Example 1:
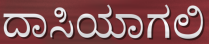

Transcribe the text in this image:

ದಾಸಿಯಾಗಲಿ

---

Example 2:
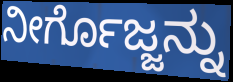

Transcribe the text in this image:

ನೀರ್ಗೊಜ್ಜನ್ನು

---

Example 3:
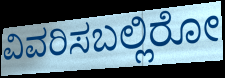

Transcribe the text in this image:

ವಿವರಿಸಬಲ್ಲಿರೋ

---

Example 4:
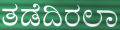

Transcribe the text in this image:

ತಡೆದಿರಲಾ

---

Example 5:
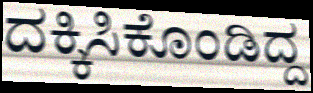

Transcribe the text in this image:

ದಕ್ಕಿಸಿಕೊಂಡಿದ್ದ